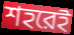
শহরেই